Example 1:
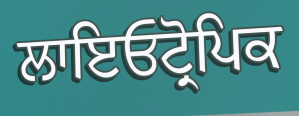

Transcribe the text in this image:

ਲਾਇਓਟ੍ਰੋਪਿਕ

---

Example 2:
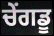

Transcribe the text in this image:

ਚੇਂਗਡੂ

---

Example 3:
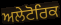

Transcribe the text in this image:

ਅਲੇਟੋਰਿਕ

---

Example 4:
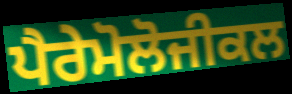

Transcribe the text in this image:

ਪੈਰੇਮੋਲੋਜੀਕਲ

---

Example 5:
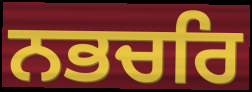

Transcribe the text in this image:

ਨਭਚਰਿ